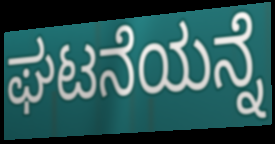
ಘಟನೆಯನ್ನೆ